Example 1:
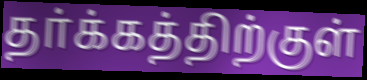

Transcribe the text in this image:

தர்க்கத்திற்குள்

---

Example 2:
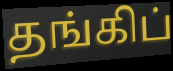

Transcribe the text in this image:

தங்கிப்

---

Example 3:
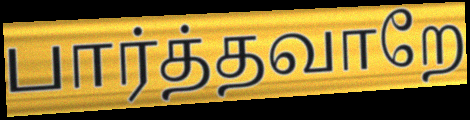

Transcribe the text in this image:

பார்த்தவாறே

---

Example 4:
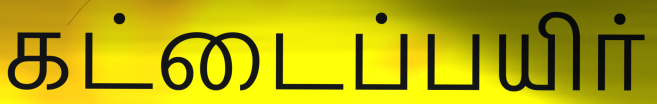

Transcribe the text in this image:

கட்டைப்பயிர்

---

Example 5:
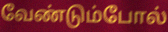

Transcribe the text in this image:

வேண்டும்போல்